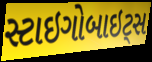
સ્ટાઇગોબાઇટ્સ